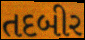
તદબીર